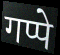
गप्पे